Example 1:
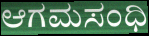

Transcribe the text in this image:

ಆಗಮಸಂಧಿ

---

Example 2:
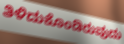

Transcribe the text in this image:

ತಿಳಿದುಕೊಂಡಿರುವುದು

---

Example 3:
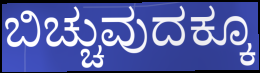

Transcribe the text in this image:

ಬಿಚ್ಚುವುದಕ್ಕೂ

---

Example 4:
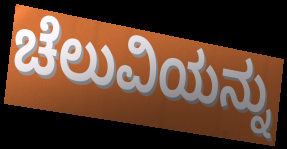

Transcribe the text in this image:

ಚೆಲುವಿಯನ್ನು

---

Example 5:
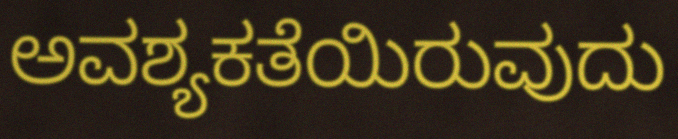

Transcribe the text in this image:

ಅವಶ್ಯಕತೆಯಿರುವುದು